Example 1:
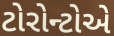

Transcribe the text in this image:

ટોરોન્ટોએ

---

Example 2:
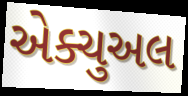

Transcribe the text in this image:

એક્ચુઅલ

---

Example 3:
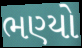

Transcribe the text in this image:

ભણ્યો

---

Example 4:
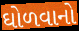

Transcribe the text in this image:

ઘોળવાનો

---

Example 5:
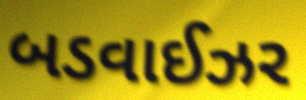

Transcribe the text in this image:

બડવાઈઝર